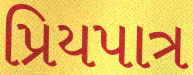
પ્રિયપાત્ર